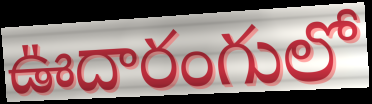
ఊదారంగులో